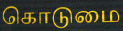
கொடுமை